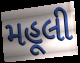
મહૂલી